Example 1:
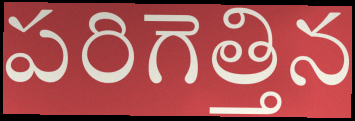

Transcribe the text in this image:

పరిగెత్తిన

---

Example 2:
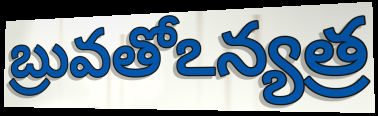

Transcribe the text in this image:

బ్రువతోఽన్యత్ర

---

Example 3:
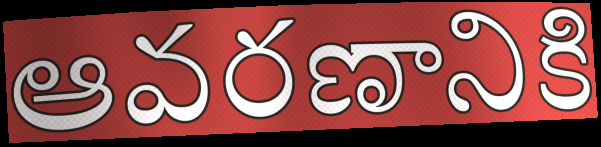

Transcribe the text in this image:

ఆవరణానికి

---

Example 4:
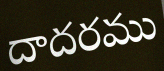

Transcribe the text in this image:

దాదరము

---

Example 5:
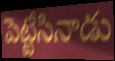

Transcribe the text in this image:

పెట్టేసినాడు